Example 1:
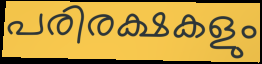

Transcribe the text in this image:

പരിരക്ഷകളും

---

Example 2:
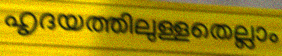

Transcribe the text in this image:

ഹൃദയത്തിലുള്ളതെല്ലാം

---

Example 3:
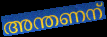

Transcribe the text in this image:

അന്തണന്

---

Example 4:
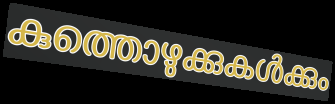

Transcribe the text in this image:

കുത്തൊഴുക്കുകൾക്കും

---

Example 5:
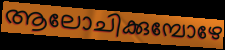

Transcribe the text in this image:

ആലോചിക്കുമ്പോഴേ